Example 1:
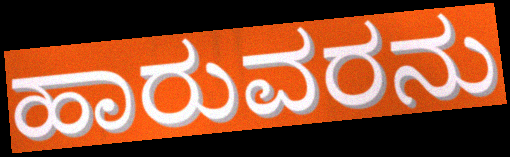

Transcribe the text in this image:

ಹಾರುವರನು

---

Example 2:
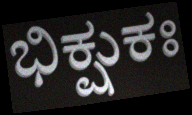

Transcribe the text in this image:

ಭಿಕ್ಷುಕಃ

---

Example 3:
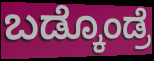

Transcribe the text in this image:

ಬಡ್ಕೊಂಡ್ರೆ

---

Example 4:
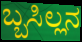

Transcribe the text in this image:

ಬ್ಬಸಿಲ್ಲನ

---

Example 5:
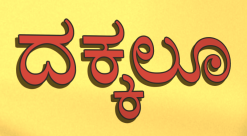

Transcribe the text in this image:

ದಕ್ಕಲೂ